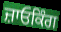
ਜ਼ਾਓਕਿੰਗ